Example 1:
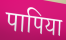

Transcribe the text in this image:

पापिया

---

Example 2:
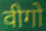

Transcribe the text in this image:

वीगो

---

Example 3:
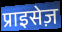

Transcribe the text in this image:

प्राइसेज़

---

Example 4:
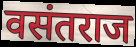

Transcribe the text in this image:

वसंतराज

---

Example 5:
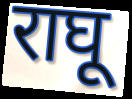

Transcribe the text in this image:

राघू